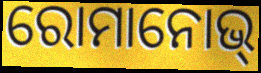
ରୋମାନୋଭ୍